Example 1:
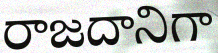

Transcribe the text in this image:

రాజదానిగా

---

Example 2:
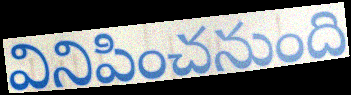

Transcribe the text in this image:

వినిపించనుంది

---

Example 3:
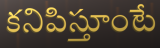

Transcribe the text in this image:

కనిపిస్తూంటే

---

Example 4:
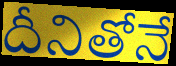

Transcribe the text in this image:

దీనితోనే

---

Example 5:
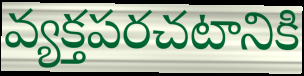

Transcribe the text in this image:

వ్యక్తపరచటానికి